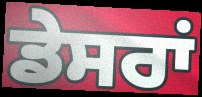
ਡੇਸਰਾਂ